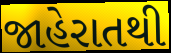
જાહેરાતથી